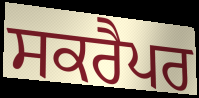
ਸਕਰੈਪਰ